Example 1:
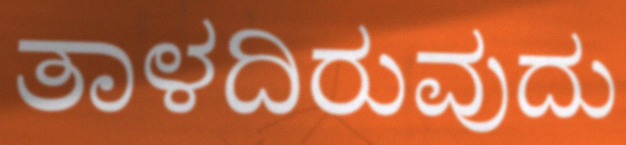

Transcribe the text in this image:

ತಾಳದಿರುವುದು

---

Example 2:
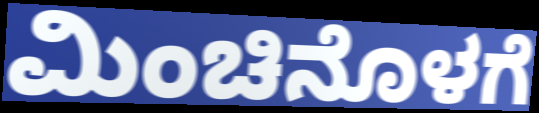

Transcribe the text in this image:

ಮಿಂಚಿನೊಳಗೆ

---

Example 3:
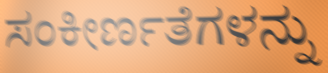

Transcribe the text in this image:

ಸಂಕೀರ್ಣತೆಗಳನ್ನು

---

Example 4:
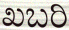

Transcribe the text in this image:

ಖಬರಿ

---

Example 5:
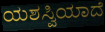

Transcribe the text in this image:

ಯಶಸ್ವಿಯಾದೆ